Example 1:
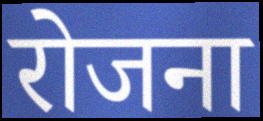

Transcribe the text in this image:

रोजना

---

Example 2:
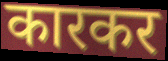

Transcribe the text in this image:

कारकर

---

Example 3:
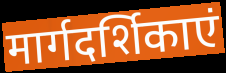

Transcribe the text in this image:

मार्गदर्शिकाएं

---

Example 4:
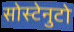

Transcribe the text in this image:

सोस्टेनुटो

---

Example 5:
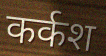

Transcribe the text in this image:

कर्कश